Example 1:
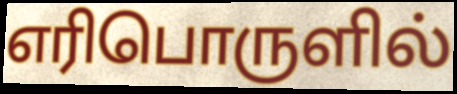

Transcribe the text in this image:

எரிபொருளில்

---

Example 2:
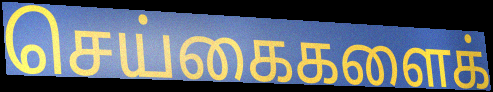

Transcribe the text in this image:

செய்கைகளைக்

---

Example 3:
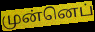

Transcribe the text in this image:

முன்னெப்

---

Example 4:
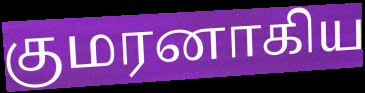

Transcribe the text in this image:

குமரனாகிய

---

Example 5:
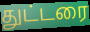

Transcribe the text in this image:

துட்டரை